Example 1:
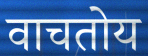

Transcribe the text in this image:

वाचतोय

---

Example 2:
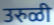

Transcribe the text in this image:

उरुळी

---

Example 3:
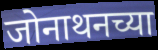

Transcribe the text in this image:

जोनाथनच्या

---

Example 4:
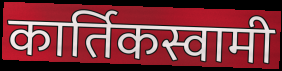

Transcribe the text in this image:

कार्तिकस्वामी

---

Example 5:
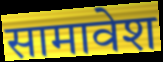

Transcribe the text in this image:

सामावेश